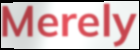
Merely